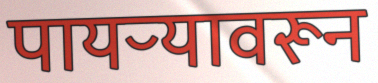
पायऱ्यावरून